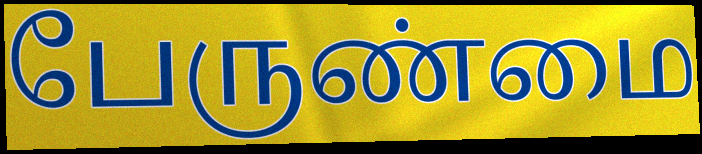
பேருண்மை